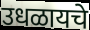
उधळायचे